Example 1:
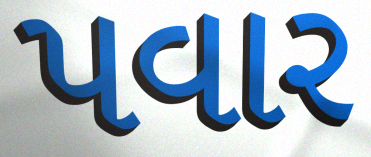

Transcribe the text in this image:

પવાર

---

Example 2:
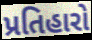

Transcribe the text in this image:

પ્રતિહારો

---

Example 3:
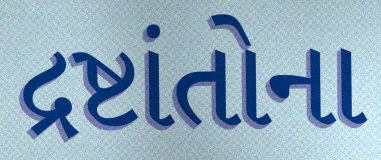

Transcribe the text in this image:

દ્રષ્ટાંતોના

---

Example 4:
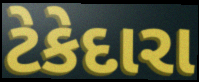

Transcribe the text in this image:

ટેકેદારા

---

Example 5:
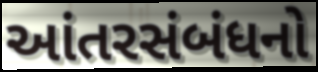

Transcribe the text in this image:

આંતરસંબંધનો